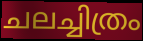
ചലച്ചിത്രം